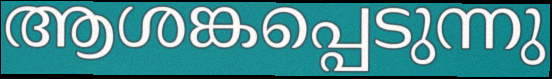
ആശങ്കപ്പെടുന്നു